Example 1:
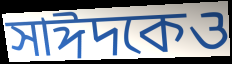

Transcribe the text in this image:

সাঈদকেও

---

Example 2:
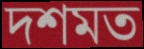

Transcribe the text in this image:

দশমত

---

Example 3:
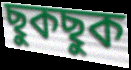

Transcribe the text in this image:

ছুকছুক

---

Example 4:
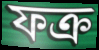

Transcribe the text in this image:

ফক্র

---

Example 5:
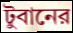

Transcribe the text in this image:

টুবানের